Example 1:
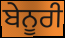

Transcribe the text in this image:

ਬੇਨੂਰੀ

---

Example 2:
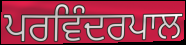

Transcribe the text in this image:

ਪਰਵਿੰਦਰਪਾਲ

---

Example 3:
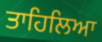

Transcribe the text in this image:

ਤਾਹਿਲਿਆ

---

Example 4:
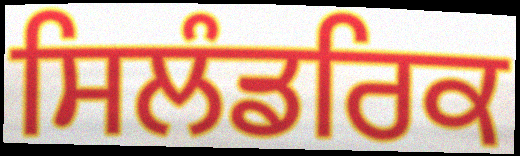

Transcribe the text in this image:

ਸਿਲੰਡਰਿਕ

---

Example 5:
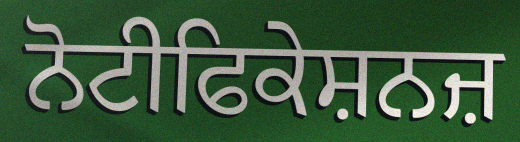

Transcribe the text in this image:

ਨੋਟੀਫਿਕੇਸ਼ਨਜ਼